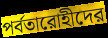
পর্বতারোহীদের